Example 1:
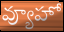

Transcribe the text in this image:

వ్యూహో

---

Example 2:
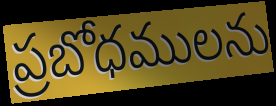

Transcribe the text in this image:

ప్రబోధములను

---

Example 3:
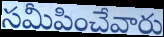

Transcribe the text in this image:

సమీపించేవారు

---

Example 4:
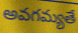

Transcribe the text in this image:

అవగమ్యతే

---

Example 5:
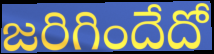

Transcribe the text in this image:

జరిగిందేదో